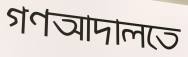
গণআদালতে